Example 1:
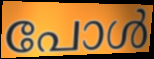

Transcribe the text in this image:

പോൾ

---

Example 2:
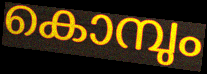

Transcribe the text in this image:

കൊമ്പും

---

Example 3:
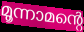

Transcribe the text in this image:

മൂന്നാമന്റെ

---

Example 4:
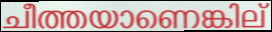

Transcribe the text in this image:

ചീത്തയാണെങ്കില്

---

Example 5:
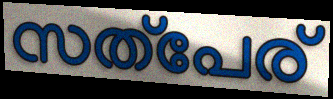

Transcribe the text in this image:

സത്പേര്